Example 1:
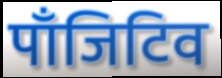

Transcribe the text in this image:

पाँजिटिव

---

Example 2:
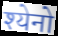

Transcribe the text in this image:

श्येनो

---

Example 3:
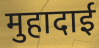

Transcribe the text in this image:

मुहादाई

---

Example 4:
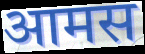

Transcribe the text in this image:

आमस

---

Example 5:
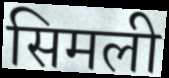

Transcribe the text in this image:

सिमली